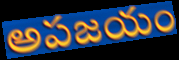
అపజయం